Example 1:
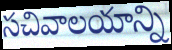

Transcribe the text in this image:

సచివాలయాన్ని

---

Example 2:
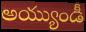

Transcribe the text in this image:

అయ్యుండీ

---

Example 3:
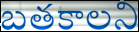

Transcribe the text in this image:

బతకాలని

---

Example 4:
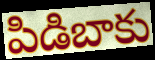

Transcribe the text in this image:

పిడిబాకు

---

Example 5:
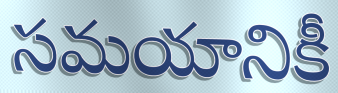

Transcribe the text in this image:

సమయానికీ